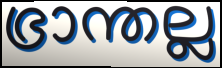
ഭ്രാന്തല്ല